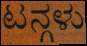
ಟನ್ಗಳು